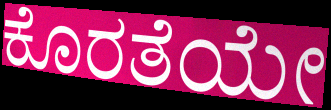
ಕೊರತೆಯೇ